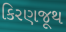
કિરણજૂથ